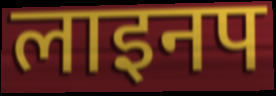
लाइनप